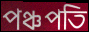
পঞ্চপতি